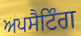
ਅਪਸੈਟਿੰਗ